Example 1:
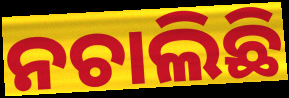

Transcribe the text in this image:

ନଚାଲିଛି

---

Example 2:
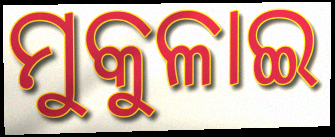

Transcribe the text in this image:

ମୁକୁଳାଇ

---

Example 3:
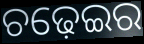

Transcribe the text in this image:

ଚଢ଼େଇର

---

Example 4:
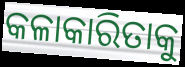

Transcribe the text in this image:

କଳାକାରିତାକୁ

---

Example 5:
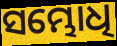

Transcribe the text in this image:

ସମ୍ଭୋଧି